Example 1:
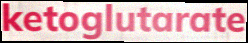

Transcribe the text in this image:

ketoglutarate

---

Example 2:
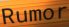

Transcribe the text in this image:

Rumor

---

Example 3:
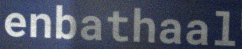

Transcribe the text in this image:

enbathaal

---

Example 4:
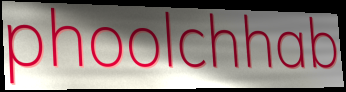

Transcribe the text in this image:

phoolchhab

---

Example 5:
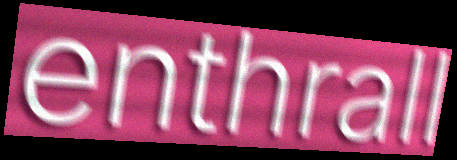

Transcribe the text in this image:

enthrall